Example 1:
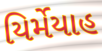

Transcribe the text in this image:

યિર્મેયાહ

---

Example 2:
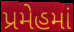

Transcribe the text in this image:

પ્રમેહમાં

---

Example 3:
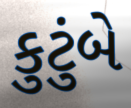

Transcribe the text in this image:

કુટુંબે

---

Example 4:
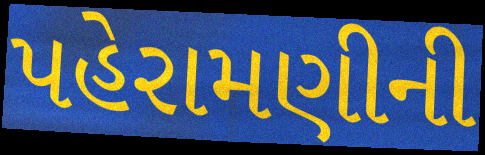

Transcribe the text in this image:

પહેરામણીની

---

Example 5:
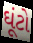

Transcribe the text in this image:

ઘૂંટો